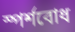
স্পর্শবোধ